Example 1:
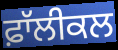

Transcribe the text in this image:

ਫ਼ਾੱਲੀਕਲ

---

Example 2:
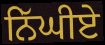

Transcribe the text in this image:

ਨਿੱਘੀਏ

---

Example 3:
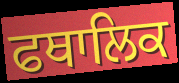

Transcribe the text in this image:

ਫਥਾਲਿਕ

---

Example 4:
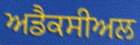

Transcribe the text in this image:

ਅਡੈਕਸੀਅਲ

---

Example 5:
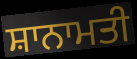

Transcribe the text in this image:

ਸ਼ਾਨਾਮਤੀ